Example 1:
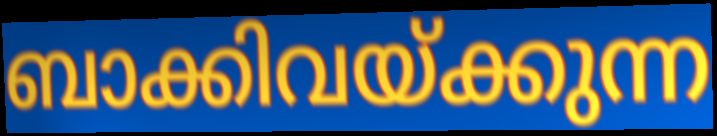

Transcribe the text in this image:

ബാക്കിവയ്ക്കുന്ന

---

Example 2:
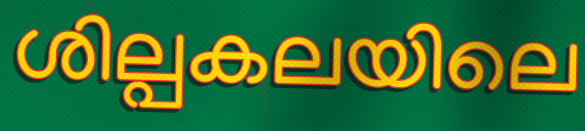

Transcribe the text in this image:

ശില്പകലയിലെ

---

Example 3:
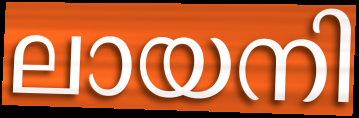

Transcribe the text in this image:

ലായനി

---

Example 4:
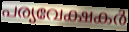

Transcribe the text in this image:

പര്യവേക്ഷകർ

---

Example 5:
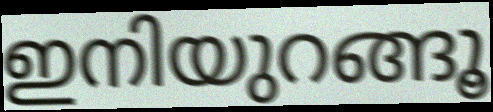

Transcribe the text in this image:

ഇനിയുറങ്ങൂ